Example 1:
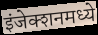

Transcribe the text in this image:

इंजेक्शनमध्ये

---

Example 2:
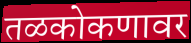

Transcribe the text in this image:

तळकोकणावर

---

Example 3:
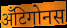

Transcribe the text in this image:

अँटिगोनस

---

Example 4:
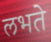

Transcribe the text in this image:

लभते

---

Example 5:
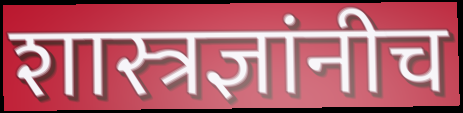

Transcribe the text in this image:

शास्त्रज्ञांनीच